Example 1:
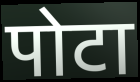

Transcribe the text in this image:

पोटा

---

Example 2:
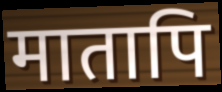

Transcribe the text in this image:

मातापि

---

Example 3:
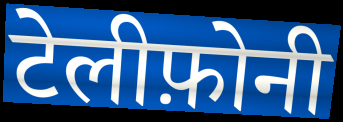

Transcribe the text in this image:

टेलीफ़ोनी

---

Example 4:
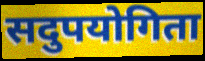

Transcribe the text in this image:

सदुपयोगिता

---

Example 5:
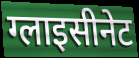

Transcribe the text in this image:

ग्लाइसीनेट